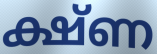
ക്ഷ്ണ